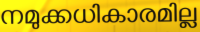
നമുക്കധികാരമില്ല